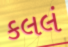
કલલં